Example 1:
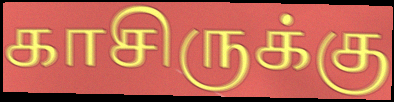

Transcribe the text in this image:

காசிருக்கு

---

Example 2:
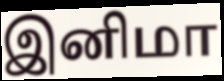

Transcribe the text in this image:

இனிமா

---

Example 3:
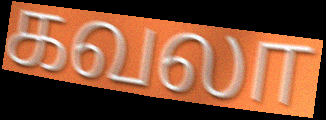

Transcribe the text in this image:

கவலா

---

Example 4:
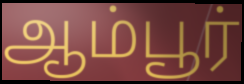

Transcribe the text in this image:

ஆம்பூர்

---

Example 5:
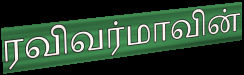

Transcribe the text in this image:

ரவிவர்மாவின்